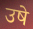
उषे